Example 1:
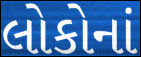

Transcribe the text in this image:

લોકોનાં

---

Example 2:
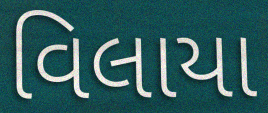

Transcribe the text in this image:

વિલાયા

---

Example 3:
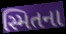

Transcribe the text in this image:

સ્મિતના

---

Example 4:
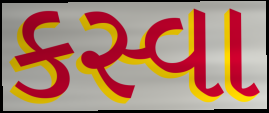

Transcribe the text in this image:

કસ્વા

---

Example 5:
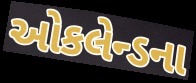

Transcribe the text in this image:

ઓકલેન્ડના